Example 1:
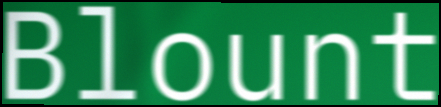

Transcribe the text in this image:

Blount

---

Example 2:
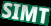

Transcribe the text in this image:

SIMT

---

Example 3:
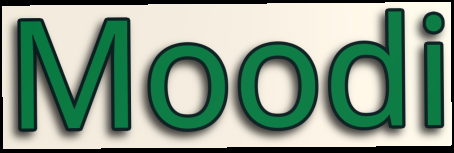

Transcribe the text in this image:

Moodi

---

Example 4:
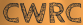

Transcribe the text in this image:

CWRC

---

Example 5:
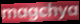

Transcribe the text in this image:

magchya